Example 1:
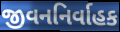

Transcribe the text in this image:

જીવનનિર્વાહક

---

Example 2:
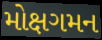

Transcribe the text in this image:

મોક્ષગમન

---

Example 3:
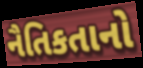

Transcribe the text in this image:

નૈતિકતાનો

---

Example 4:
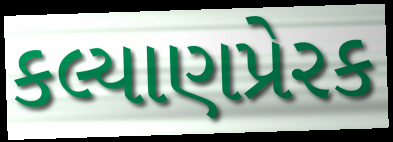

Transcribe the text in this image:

કલ્યાણપ્રેરક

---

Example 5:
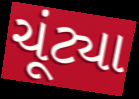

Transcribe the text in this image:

ચૂંટ્યા